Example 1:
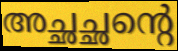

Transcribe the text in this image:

അച്ഛച്ഛന്റെ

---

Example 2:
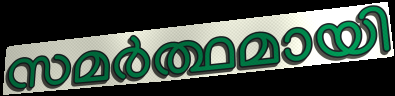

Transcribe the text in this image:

സമർത്ഥമായി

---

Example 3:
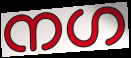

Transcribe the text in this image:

നഗ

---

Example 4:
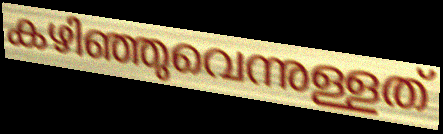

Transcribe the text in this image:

കഴിഞ്ഞുവെന്നുള്ളത്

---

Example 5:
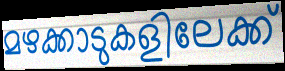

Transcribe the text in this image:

മഴക്കാടുകളിലേക്ക്